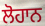
ਲੋਹਾਨ